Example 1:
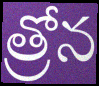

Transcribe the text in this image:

త్రోన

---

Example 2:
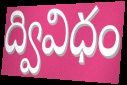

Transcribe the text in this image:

ద్వివిధం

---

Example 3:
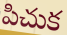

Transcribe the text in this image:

పిచుక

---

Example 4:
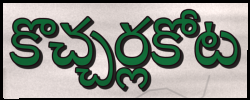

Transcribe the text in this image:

కొచ్చర్లకోట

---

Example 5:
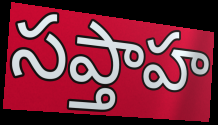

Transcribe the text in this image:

సప్తాహ